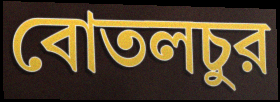
বোতলচুর